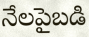
నేలపైబడి